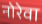
नोरेवा